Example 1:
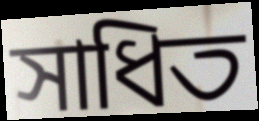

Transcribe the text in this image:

সাধিত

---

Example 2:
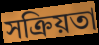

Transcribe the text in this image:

সক্ৰিয়তা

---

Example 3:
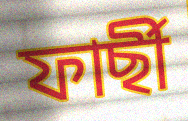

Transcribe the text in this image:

ফাৰ্ছী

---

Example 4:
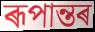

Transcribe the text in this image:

ৰূপান্তৰ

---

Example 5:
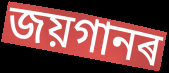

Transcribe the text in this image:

জয়গানৰ